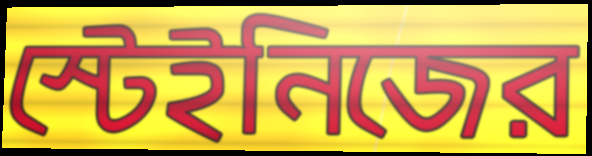
স্টেইনিজের